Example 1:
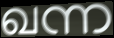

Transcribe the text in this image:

ഖന്ന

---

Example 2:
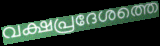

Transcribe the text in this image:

വക്ഷപ്രദേശത്തെ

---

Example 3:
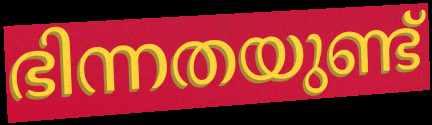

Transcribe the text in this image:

ഭിന്നതയുണ്ട്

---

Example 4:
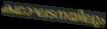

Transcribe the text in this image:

കഥാഘടനയിലും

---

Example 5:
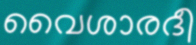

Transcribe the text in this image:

വൈശാരദീ